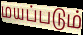
மயப்படும்